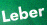
Leber